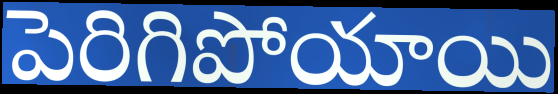
పెరిగిపోయాయి